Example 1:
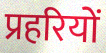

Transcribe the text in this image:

प्रहरियों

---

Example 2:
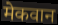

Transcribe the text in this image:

मेकवान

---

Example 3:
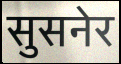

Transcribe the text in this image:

सुसनेर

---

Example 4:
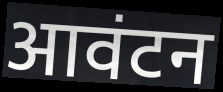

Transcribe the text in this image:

आवंटन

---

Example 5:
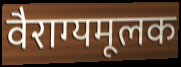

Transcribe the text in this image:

वैराग्यमूलक